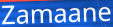
Zamaane